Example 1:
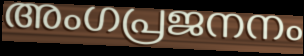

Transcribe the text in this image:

അംഗപ്രജനനം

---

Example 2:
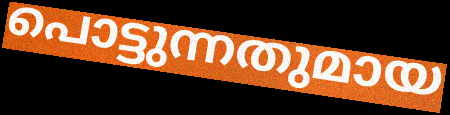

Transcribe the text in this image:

പൊട്ടുന്നതുമായ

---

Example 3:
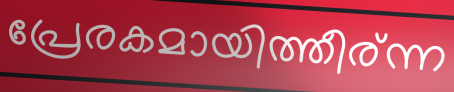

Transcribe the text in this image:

പ്രേരകമായിത്തീര്ന്ന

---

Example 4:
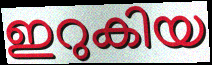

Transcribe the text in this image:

ഇറുകിയ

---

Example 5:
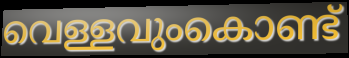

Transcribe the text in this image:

വെള്ളവുംകൊണ്ട്